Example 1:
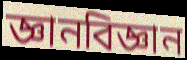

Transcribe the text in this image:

জ্ঞানবিজ্ঞান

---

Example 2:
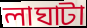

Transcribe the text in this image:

লাঘাটা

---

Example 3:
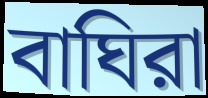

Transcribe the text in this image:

বাঘিরা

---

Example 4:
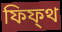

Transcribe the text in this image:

ফিফ্থ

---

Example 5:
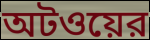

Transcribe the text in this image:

অটওয়ের